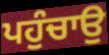
ਪਹੁੰਚਾਉ